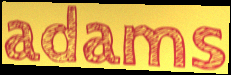
adams